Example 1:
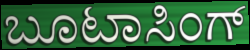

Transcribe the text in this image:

ಬೂಟಾಸಿಂಗ್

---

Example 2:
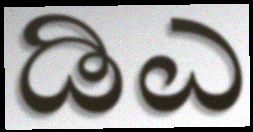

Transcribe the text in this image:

ಡಿಎ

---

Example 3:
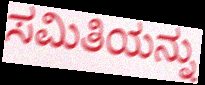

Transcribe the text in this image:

ಸಮಿತಿಯನ್ನು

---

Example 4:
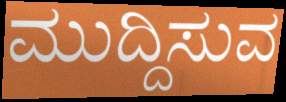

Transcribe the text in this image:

ಮುದ್ದಿಸುವ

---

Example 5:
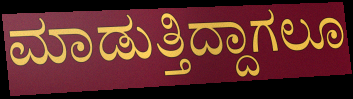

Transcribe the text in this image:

ಮಾಡುತ್ತಿದ್ದಾಗಲೂ